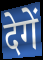
देगें